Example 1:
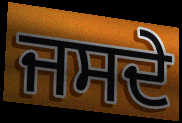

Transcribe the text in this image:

ਜਸਦੇ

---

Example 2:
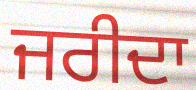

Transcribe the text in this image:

ਜਰੀਦਾ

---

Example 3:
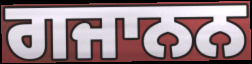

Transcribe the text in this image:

ਗਜਾਨਨ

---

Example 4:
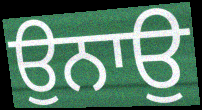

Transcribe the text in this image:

ਉਨਾਉ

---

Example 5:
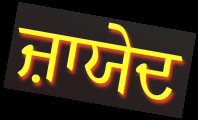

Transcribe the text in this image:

ਜ਼ਾਯੇਦ